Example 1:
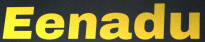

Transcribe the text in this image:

Eenadu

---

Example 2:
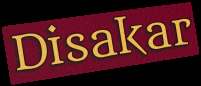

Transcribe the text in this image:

Disakar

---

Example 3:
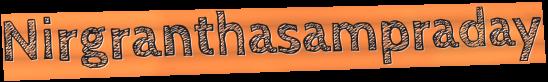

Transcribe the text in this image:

Nirgranthasampraday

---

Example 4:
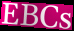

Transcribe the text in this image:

EBCs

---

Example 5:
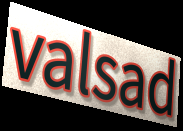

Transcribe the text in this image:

valsad